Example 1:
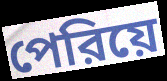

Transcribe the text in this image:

পেরিয়ে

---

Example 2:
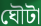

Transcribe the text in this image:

ঘৌটা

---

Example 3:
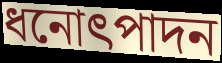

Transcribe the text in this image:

ধনোৎপাদন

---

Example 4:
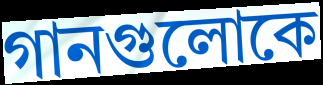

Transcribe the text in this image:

গানগুলোকে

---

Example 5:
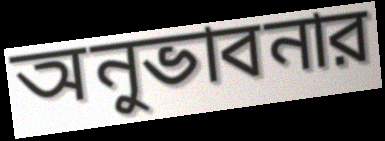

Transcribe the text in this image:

অনুভাবনার